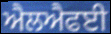
ਐਲਐਫਈ